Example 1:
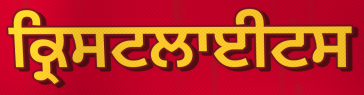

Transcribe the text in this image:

ਕ੍ਰਿਸਟਲਾਈਟਸ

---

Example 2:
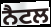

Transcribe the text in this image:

ਨੈਟਲ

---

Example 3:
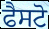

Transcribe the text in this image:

ਫੈਸਟੋ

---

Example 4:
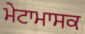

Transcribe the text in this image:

ਮੇਟਾਮਾਸਕ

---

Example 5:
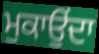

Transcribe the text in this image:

ਮੁਕਾਉਂਦਾ